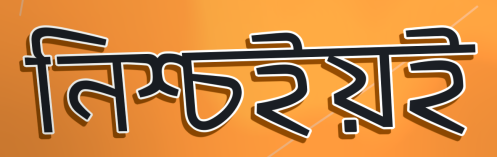
নিশ্চইয়ই